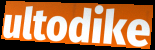
ultodike